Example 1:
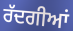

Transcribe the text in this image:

ਰੱਦਗੀਆਂ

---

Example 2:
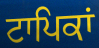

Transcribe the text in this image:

ਟਾਪਿਕਾਂ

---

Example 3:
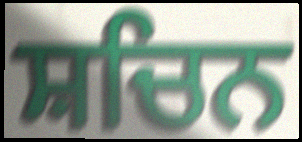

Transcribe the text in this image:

ਸ਼ਚਿਨ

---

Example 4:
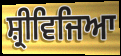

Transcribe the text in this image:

ਸ਼੍ਰੀਵਿਜਿਆ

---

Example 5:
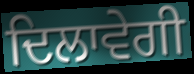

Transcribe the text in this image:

ਦਿਲਾਵੇਗੀ